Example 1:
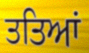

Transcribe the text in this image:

ਤਤਿਆਂ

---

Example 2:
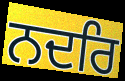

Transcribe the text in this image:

ਨਦਰਿ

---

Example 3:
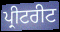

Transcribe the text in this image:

ਪ੍ਰੀਟਰੀਟ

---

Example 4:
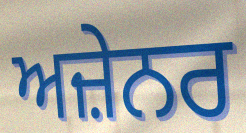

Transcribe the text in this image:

ਅਜ਼ੇਨਰ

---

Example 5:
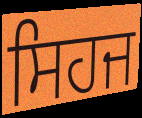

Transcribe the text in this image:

ਸਿਹਜ